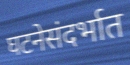
घटनेसंदर्भात